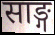
साङ्ग